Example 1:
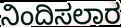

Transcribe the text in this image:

ನಿಂದಿಸಲಾರ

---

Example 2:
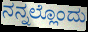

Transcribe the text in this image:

ನನ್ನಲ್ಲೊಂದು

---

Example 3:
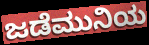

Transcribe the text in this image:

ಜಡೆಮುನಿಯ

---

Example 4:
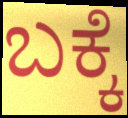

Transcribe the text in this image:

ಬಕ್ಕೆ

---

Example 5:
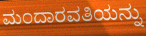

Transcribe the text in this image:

ಮಂದಾರವತಿಯನ್ನು